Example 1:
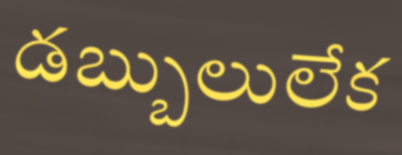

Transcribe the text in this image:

డబ్బులులేక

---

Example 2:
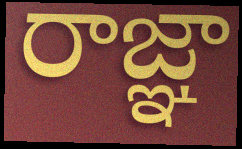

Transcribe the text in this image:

రాజ్ఞా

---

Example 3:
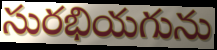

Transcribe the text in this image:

సురభియగును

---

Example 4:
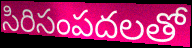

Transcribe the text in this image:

సిరిసంపదలతో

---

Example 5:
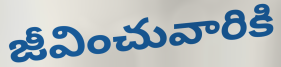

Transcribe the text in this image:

జీవించువారికి